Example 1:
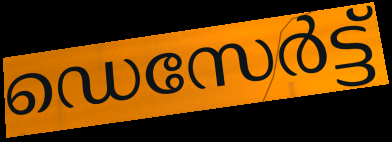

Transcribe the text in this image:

ഡെസേർട്ട്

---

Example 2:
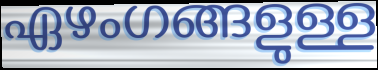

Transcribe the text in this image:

ഏഴംഗങ്ങളുള്ള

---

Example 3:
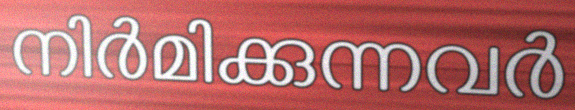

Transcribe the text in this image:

നിർമിക്കുന്നവർ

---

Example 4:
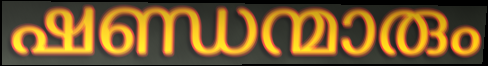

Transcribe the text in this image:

ഷണ്ഡന്മാരും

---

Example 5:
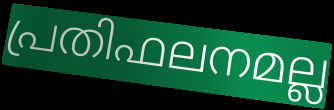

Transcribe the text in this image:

പ്രതിഫലനമല്ല